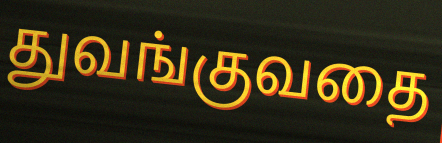
துவங்குவதை